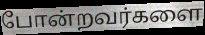
போன்றவர்களை